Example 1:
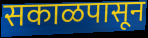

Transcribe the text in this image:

सकाळपासून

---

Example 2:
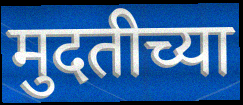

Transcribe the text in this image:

मुदतीच्या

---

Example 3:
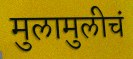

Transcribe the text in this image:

मुलामुलीचं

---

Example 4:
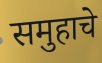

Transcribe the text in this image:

समुहाचे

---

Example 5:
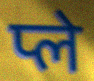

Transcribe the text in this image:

प्ले